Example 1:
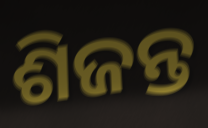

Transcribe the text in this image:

ଶିଜନ୍ତ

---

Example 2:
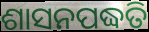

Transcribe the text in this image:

ଶାସନପଦ୍ଧତି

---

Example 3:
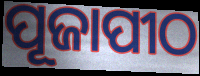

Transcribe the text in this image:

ପୂଜାପୀଠ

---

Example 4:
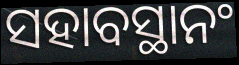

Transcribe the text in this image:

ସହାବସ୍ଥାନଂ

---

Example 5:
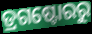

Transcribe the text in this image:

ଡ୍ରଗଷ୍ଟୋରରୁ